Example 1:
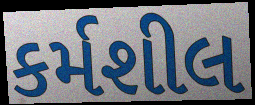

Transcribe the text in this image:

કર્મશીલ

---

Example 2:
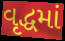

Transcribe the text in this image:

વૃદ્ધમાં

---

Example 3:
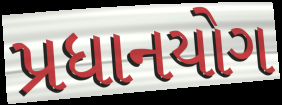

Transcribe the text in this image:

પ્રધાનયોગ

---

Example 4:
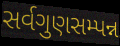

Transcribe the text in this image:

સર્વગુણસમ્પન્ન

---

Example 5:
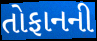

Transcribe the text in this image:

તોફાનની